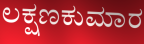
ಲಕ್ಷಣಕುಮಾರ